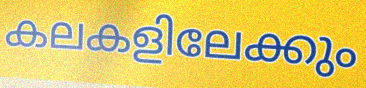
കലകളിലേക്കും